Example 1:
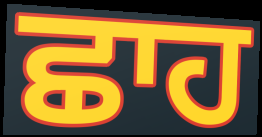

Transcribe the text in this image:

ਛਾਹ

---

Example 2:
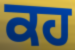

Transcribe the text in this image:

ਕਹ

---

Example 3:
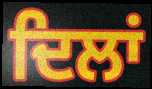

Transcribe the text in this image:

ਦਿਲਾਂ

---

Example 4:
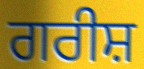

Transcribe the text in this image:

ਗਰੀਸ਼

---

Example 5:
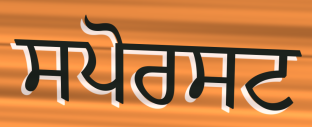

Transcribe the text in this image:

ਸਪੋਰਸਟ